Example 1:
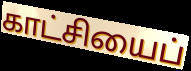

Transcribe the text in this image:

காட்சியைப்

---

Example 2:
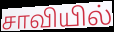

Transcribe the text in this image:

சாவியில்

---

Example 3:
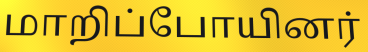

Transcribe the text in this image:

மாறிப்போயினர்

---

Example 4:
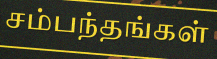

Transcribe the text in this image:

சம்பந்தங்கள்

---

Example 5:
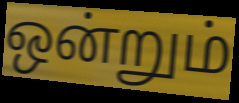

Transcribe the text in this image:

ஒன்றும்